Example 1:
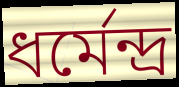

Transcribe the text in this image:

ধর্মেন্দ্র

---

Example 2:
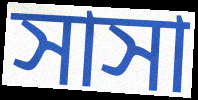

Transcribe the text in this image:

সাসা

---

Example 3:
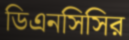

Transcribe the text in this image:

ডিএনসিসির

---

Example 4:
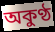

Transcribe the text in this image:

অকুণ্ঠ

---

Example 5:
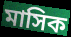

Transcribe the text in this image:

মাসিক